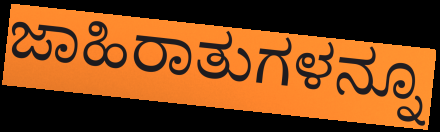
ಜಾಹಿರಾತುಗಳನ್ನೂ